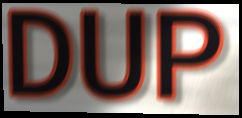
DUP